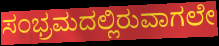
ಸಂಭ್ರಮದಲ್ಲಿರುವಾಗಲೇ